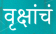
वृक्षांचं